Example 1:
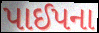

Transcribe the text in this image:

પાઈપના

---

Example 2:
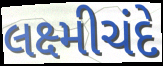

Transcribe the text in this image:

લક્ષ્મીચંદે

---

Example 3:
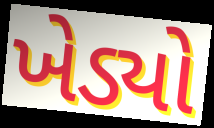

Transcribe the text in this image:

ખેડ્યો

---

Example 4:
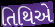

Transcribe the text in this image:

તિથિએ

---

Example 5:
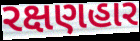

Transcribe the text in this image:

રક્ષણહાર